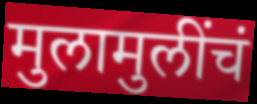
मुलामुलींचं